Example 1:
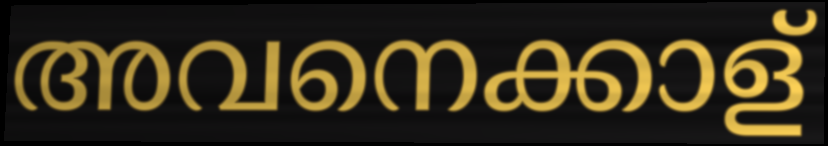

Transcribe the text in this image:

അവനെക്കാള്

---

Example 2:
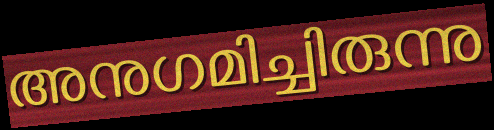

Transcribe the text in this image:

അനുഗമിച്ചിരുന്നു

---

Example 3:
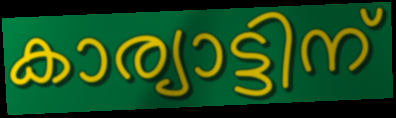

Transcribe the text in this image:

കാര്യാട്ടിന്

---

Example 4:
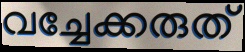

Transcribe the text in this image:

വച്ചേക്കരുത്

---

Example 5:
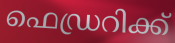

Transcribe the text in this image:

ഫെഡ്രറിക്ക്